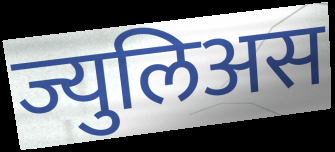
ज्युलिअस